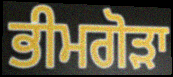
ਭੀਮਗੋੜਾ